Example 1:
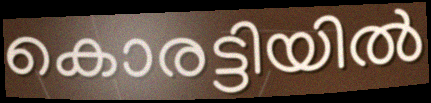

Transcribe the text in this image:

കൊരട്ടിയിൽ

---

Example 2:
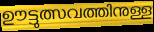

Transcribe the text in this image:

ഊട്ടുത്സവത്തിനുള്ള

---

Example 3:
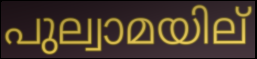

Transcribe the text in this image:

പുല്വാമയില്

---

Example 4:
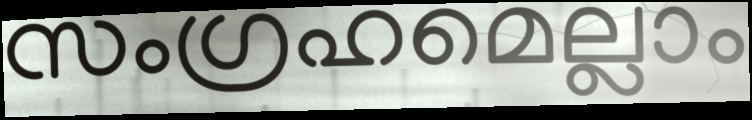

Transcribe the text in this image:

സംഗ്രഹമെല്ലാം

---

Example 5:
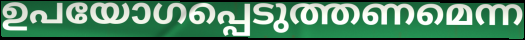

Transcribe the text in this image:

ഉപയോഗപ്പെടുത്തണമെന്ന